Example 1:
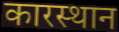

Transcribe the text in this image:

कारस्थान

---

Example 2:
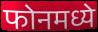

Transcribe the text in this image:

फोनमध्ये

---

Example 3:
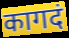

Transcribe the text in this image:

कागदं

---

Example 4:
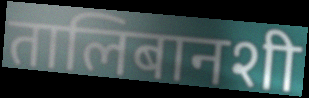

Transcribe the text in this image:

तालिबानशी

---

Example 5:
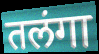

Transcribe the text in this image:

तलंगा